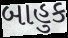
બાહુક